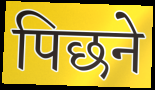
पिछने